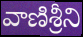
వాణిశ్రీని